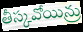
తీస్కవోయిన్రు